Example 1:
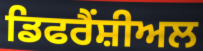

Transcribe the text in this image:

ਡਿਫਰੈਂਸ਼ੀਅਲ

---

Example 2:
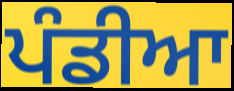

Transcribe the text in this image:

ਪੰਡੀਆ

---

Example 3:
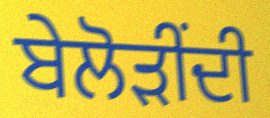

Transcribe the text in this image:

ਬੇਲੋੜੀਂਦੀ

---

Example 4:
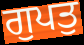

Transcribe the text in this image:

ਗੁਪਤੁ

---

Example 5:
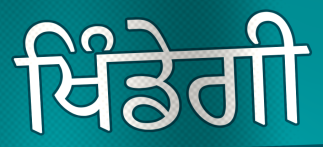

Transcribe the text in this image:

ਖਿੰਡੇਗੀ